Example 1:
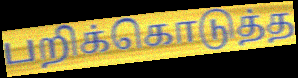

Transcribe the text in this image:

பறிக்கொடுத்த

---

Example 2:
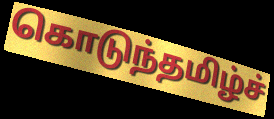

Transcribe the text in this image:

கொடுந்தமிழ்ச்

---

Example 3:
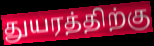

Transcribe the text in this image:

துயரத்திற்கு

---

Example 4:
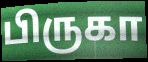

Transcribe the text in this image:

பிருகா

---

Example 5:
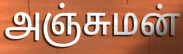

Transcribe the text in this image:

அஞ்சுமன்